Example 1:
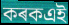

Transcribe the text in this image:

কৰকএই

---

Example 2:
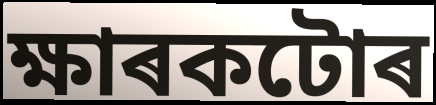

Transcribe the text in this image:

ক্ষাৰকটোৰ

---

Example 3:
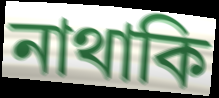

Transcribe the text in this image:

নাথাকি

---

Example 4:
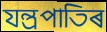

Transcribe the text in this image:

যন্ত্ৰপাতিৰ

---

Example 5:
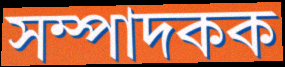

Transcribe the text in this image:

সম্পাদকক